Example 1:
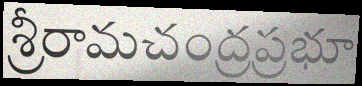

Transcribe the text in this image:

శ్రీరామచంద్రప్రభూ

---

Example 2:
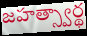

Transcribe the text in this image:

జహత్స్వార్థ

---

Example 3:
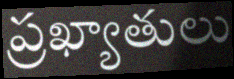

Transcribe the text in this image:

ప్రఖ్యాతులు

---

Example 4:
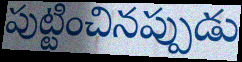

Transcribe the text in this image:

పుట్టించినప్పుడు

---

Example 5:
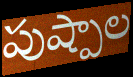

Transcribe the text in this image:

పుష్పాల